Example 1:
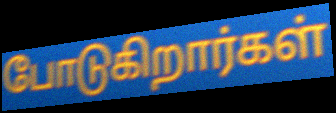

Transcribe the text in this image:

போடுகிறார்கள்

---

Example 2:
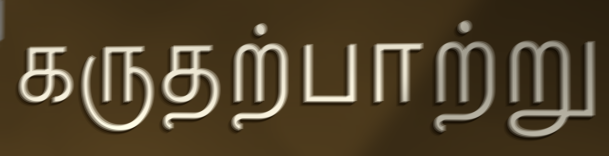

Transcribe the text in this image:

கருதற்பாற்று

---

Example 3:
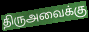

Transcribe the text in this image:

திருஅவைக்கு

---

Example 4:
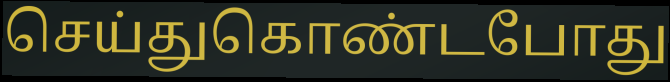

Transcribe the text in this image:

செய்துகொண்டபோது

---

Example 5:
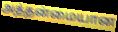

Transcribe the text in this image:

அத்தன்மையான